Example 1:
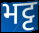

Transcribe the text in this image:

भट्ट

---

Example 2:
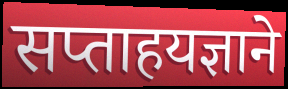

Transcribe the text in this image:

सप्ताहयज्ञाने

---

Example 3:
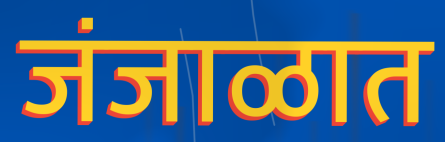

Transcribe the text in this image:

जंजाळात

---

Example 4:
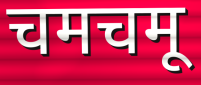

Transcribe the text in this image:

चमचमू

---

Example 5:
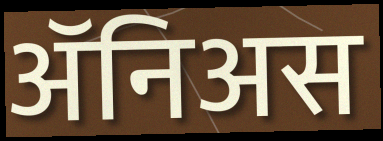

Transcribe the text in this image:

ॲनिअस